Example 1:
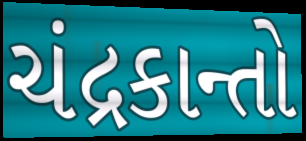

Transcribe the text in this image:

ચંદ્રકાન્તો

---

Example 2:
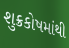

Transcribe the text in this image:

શુક્રકોષમાંથી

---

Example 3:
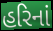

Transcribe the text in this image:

હરિનાં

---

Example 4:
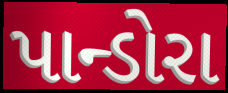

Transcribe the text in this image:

પાન્ડોરા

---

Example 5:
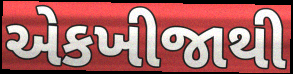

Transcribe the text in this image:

એકખીજાથી